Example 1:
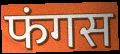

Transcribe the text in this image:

फंगस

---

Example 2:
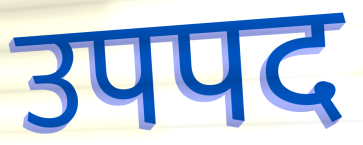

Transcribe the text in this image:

उपपद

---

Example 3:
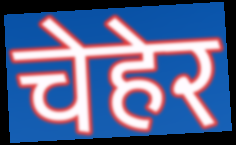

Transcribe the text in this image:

चेहेर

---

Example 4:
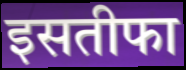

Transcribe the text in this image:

इसतीफा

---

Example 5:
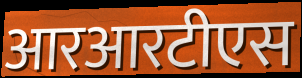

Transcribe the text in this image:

आरआरटीएस